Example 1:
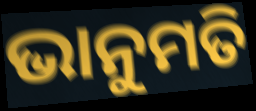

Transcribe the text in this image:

ଭାନୁମତି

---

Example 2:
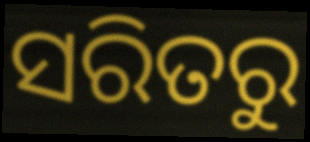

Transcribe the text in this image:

ସରିତରୁ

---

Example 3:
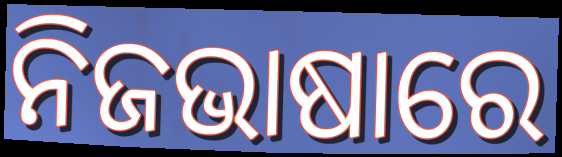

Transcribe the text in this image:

ନିଜଭାଷାରେ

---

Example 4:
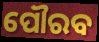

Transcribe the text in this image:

ପୌରବ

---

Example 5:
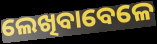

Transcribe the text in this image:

ଲେଖିବାବେଳେ